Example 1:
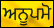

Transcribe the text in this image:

ਅਨੂਪਮੋ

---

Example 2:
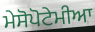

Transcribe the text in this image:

ਮੇਸੋਪੋਟੇਮੀਆ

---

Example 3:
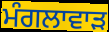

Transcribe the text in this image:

ਮੰਗਲਾਵਾੜ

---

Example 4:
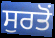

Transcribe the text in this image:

ਸੁਰਤੋਂ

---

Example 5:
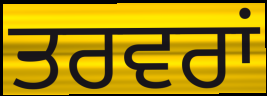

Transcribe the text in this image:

ਤਰਵਰਾਂ